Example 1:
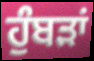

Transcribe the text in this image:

ਹੁੰਬੜਾਂ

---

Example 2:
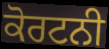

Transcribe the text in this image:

ਕੋਰਟਨੀ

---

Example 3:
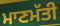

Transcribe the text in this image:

ਮਾਣਮੱਤੀ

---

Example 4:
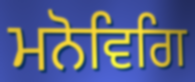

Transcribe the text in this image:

ਮਨੋਵਿਗਿ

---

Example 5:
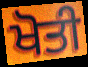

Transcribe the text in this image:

ਖੋਤੀ